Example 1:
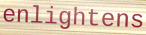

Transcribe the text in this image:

enlightens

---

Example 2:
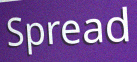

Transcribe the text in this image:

Spread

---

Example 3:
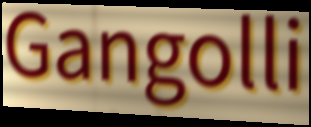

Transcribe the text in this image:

Gangolli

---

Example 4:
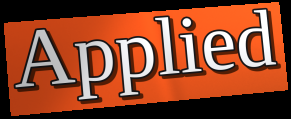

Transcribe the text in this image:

Applied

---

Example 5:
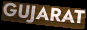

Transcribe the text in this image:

GUJARAT